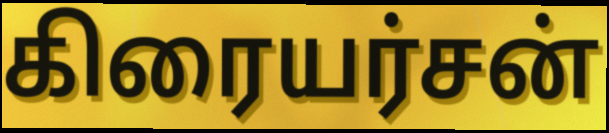
கிரையர்சன்